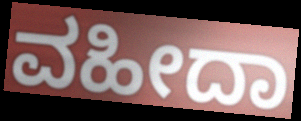
ವಹೀದಾ